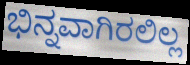
ಭಿನ್ನವಾಗಿರಲಿಲ್ಲ